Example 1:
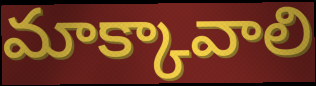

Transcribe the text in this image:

మాక్కావాలి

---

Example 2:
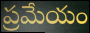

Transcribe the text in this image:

ప్రమేయం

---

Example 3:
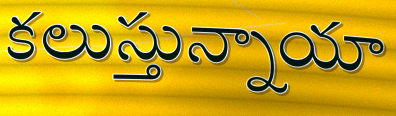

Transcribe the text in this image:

కలుస్తున్నాయా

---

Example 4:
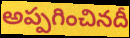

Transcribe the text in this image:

అప్పగించినదీ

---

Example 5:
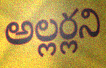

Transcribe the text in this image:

అల్లర్లని